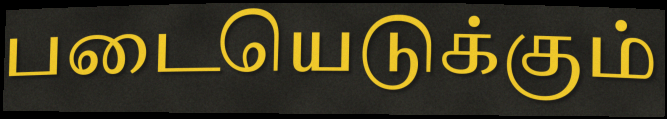
படையெடுக்கும்